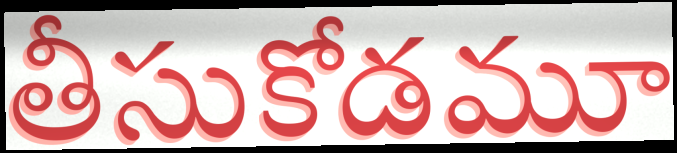
తీసుకోడమూ